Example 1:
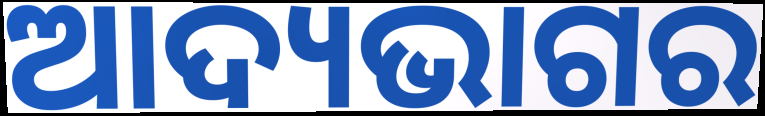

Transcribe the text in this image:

ଆଦ୍ୟଭାଗର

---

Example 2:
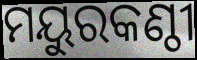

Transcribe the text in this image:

ମୟୁରକଣ୍ଠୀ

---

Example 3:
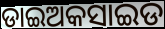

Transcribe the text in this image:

ଡାଇଅକସାଇଡ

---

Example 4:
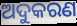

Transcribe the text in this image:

ଅଦୁକରଣ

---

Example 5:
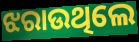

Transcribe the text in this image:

ଝରାଉଥିଲେ